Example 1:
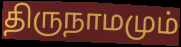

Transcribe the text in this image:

திருநாமமும்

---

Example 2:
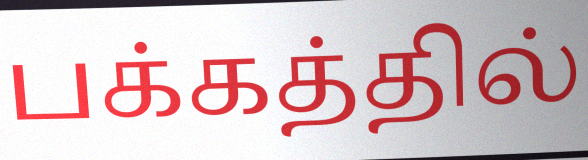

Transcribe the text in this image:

பக்கத்தில்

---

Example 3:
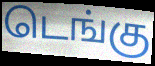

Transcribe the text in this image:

டெங்கு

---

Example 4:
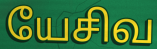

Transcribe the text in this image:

யேசிவ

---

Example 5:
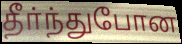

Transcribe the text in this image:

தீர்ந்துபோன